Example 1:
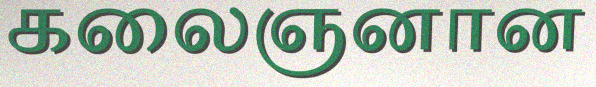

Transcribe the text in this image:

கலைஞனான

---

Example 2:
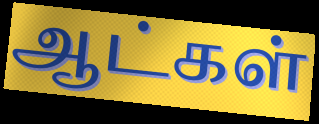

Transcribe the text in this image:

ஆட்கள்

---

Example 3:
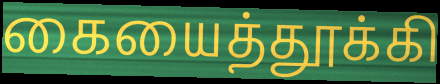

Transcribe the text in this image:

கையைத்தூக்கி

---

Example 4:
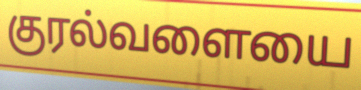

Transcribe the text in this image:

குரல்வளையை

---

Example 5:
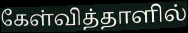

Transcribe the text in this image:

கேள்வித்தாளில்